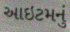
આઇટમનું